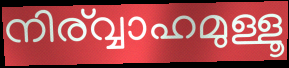
നിര്വ്വാഹമുള്ളൂ